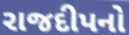
રાજદીપનો